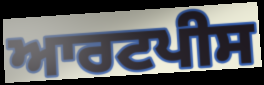
ਆਰਟਪੀਸ